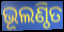
ଭୂଲଣ୍ଠିତ